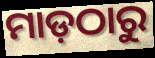
ମାଡ଼ଠାରୁ